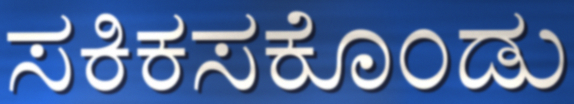
ಸಕಿಕಸಕೊಂಡು